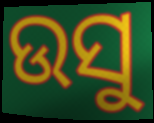
ଉସୁ